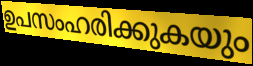
ഉപസംഹരിക്കുകയും